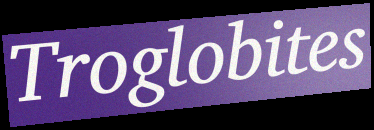
Troglobites